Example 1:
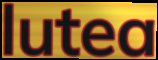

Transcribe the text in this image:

lutea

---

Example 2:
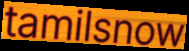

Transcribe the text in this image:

tamilsnow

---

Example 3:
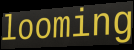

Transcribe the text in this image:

looming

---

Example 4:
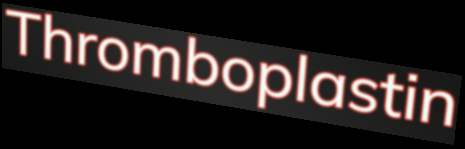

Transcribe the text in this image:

Thromboplastin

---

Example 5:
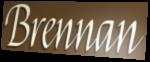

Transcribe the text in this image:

Brennan